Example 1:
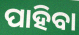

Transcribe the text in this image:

ପାହିବା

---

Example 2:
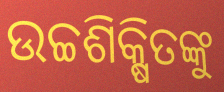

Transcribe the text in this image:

ଉଚ୍ଚଶିକ୍ଷିତଙ୍କୁ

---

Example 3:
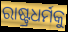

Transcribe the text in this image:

ରାଷ୍ଟ୍ରଧର୍ମକୁ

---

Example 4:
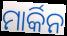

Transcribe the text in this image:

ମାର୍କିନ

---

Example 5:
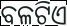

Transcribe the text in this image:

ବଳଟିଏ